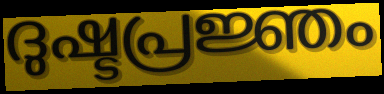
ദുഷ്ടപ്രജ്ഞം